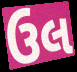
ઉલ